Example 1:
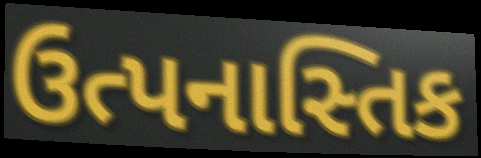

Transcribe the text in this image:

ઉત્પનાસ્તિક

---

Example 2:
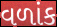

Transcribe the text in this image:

વળાંક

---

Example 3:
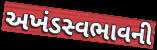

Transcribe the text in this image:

અખંડસ્વભાવની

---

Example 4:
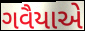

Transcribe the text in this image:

ગવૈયાએ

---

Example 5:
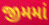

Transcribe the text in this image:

જીમમાં